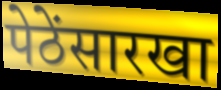
पेठेंसारखा